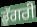
ਡੁੱਗਰੀ